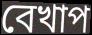
বেখাপ